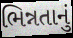
ભિન્નતાનું